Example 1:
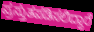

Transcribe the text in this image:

ಪ್ರಸ್ತುತಪಡಿಸಲಿದ್ದಾರೆ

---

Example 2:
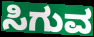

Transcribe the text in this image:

ಸಿಗುವ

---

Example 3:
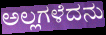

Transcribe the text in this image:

ಅಲ್ಲಗಳೆದನು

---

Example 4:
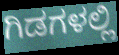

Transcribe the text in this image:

ಗಿಡಗಳಲ್ಲಿ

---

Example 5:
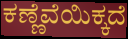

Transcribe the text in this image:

ಕಣ್ಣೆವೆಯಿಕ್ಕದೆ